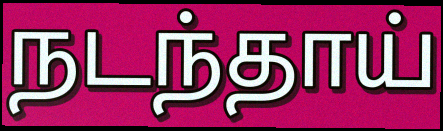
நடந்தாய்